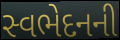
સ્વભેદનની